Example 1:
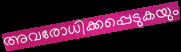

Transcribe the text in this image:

അവരോധിക്കപ്പെടുകയും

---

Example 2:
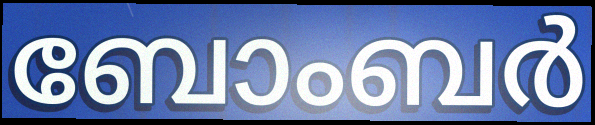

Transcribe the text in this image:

ബോംബർ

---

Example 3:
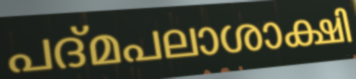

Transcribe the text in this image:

പദ്മപലാശാക്ഷി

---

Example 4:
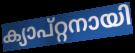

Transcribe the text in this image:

ക്യാപ്റ്റനായി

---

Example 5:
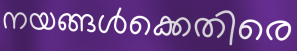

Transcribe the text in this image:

നയങ്ങൾക്കെതിരെ